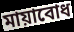
মায়াবোধ